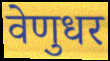
वेणुधर